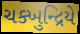
ચક્ખુન્દ્રિયે